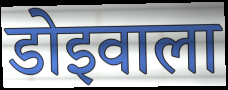
डोइवाला